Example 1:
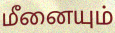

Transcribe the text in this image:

மீனையும்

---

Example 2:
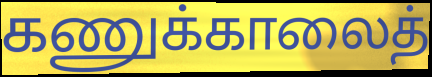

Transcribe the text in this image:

கணுக்காலைத்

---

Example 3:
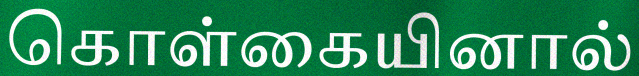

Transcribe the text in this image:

கொள்கையினால்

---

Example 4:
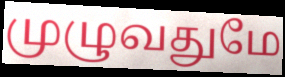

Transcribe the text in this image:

முழுவதுமே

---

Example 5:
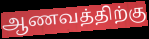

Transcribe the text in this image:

ஆணவத்திற்கு